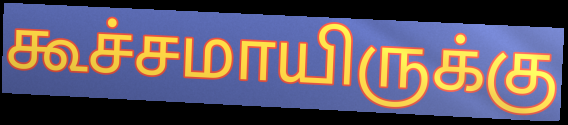
கூச்சமாயிருக்கு